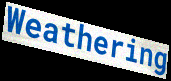
Weathering